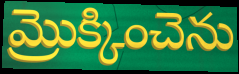
మ్రొక్కించెను